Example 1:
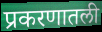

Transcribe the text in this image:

प्रकरणातली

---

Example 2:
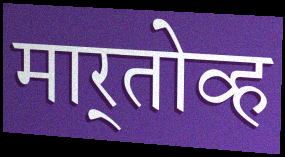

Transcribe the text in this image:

मार्तोव्ह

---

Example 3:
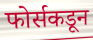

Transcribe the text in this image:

फोर्सकडून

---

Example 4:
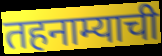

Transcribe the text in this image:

तहनाम्याची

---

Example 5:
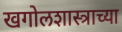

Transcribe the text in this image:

खगोलशास्त्राच्या